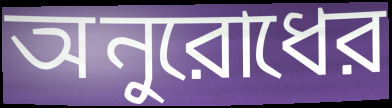
অনুরোধের